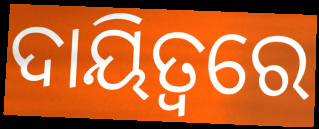
ଦାୟିତ୍ୱରେ